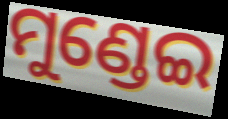
ମୁଣ୍ଡେଇ